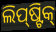
ଲିପ୍‍ଷ୍ଟିକ୍